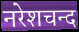
नरेशचन्द